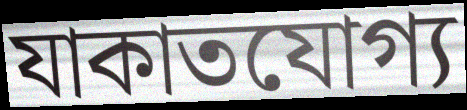
যাকাতযোগ্য